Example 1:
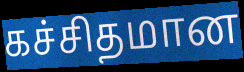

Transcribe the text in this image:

கச்சிதமான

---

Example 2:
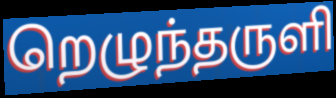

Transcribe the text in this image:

றெழுந்தருளி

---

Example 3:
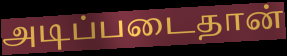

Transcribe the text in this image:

அடிப்படைதான்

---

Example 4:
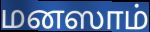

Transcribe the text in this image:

மனஸாம்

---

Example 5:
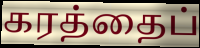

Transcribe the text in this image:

கரத்தைப்